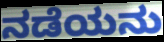
ನಡೆಯನು